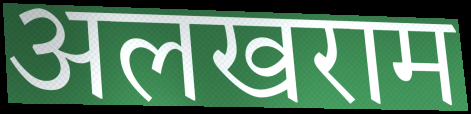
अलखराम